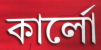
কার্লো